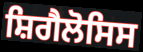
ਸ਼ਿਗੈਲੋਸਿਸ